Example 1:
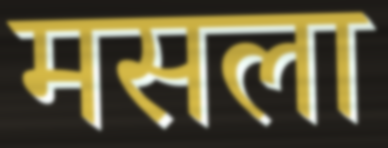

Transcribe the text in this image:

मसला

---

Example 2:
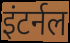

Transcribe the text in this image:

इंटर्नल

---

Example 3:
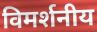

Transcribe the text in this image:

विमर्शनीय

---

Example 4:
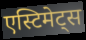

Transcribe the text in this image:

एस्टिमेट्स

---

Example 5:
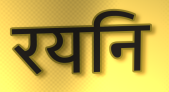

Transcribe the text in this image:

रयनि